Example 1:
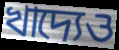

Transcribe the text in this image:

খাদ্যেও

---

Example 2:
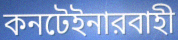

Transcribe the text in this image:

কনটেইনারবাহী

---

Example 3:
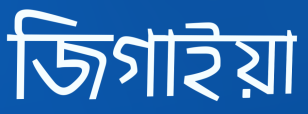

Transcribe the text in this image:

জিগাইয়া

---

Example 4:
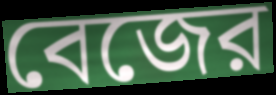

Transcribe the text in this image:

বেজের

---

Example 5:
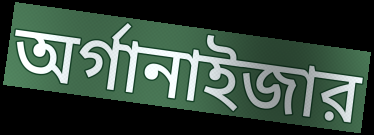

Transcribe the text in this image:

অর্গানাইজার